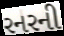
રનરની